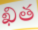
ఖిత